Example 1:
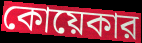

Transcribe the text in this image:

কোয়েকার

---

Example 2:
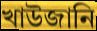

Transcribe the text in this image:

খাউজানি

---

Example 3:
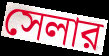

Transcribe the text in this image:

সেলার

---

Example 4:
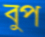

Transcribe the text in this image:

বুপ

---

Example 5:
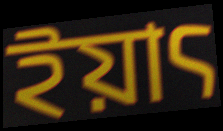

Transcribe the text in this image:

ইয়াৎ